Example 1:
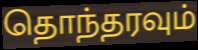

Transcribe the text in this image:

தொந்தரவும்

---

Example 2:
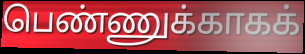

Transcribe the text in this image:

பெண்ணுக்காகக்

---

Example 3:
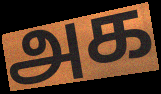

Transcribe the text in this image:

அக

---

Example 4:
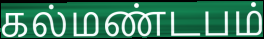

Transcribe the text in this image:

கல்மண்டபம்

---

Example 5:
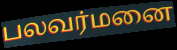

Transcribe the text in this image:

பலவர்மனை